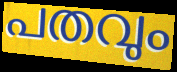
പതവും